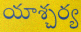
యాశ్చర్య